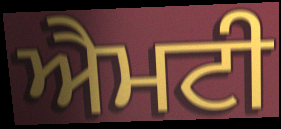
ਐਮਟੀ